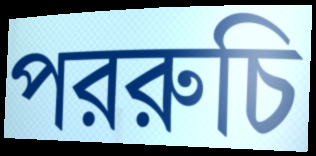
পররুচি